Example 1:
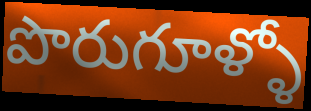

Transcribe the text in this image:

పొరుగూళ్ళో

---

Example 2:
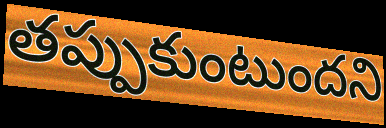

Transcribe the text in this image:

తప్పుకుంటుందని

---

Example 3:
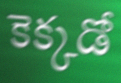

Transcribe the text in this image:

కెక్కడో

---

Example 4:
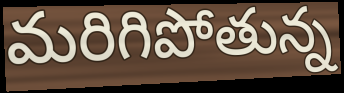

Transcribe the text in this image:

మరిగిపోతున్న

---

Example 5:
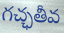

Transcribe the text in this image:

గచ్ఛతీవ